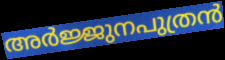
അർജ്ജുനപുത്രൻ